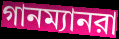
গানম্যানরা